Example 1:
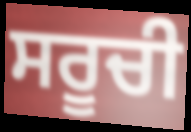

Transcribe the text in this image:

ਸਰੂਚੀ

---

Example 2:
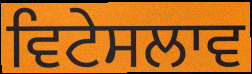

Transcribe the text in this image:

ਵਿਟੇਸਲਾਵ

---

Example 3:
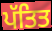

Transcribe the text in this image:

ਪੱਤਿਤ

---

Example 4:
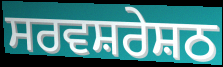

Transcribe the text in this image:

ਸਰਵਸ਼ਰੇਸ਼ਠ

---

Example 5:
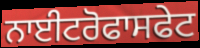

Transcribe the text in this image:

ਨਾਈਟਰੋਫਾਸਫੇਟ